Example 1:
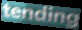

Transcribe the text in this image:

tending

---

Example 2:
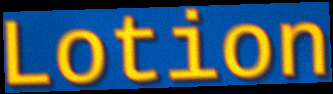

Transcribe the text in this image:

Lotion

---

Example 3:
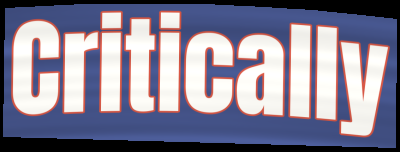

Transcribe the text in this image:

Critically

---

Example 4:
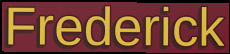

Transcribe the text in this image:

Frederick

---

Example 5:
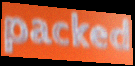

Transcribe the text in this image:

packed